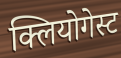
क्लियोगेस्ट